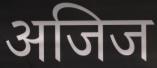
अजिज